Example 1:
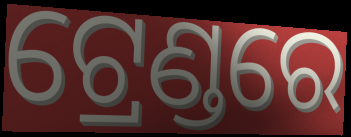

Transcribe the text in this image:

ଟ୍ରେଣ୍ଡରେ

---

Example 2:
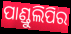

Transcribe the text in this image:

ପାଣ୍ଡୁଲିପିର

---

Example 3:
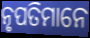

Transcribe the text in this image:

ନୃପତିମାନେ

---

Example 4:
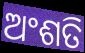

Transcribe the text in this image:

ଅଂଶତି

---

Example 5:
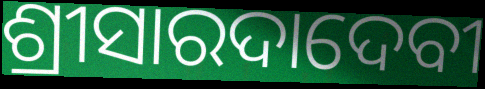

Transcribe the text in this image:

ଶ୍ରୀସାରଦାଦେବୀ